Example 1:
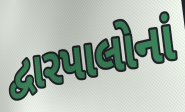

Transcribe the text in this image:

દ્વારપાલોનાં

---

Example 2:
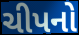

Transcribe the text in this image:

ચીપનો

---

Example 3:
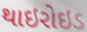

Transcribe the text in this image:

થાઇરોઇડ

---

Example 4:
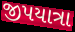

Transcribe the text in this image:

જીપયાત્રા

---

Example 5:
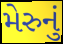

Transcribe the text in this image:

મેરુનું